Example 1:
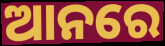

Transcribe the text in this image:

ଆନରେ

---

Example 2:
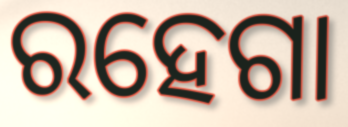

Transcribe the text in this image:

ରହେଗା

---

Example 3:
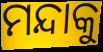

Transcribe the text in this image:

ମନ୍ଦାକୁ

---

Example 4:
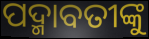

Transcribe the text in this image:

ପଦ୍ମାବତୀଙ୍କୁ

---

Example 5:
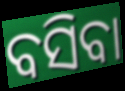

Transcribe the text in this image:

ବସିବା